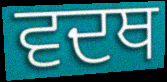
ਵਦਥ